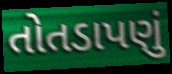
તોતડાપણું